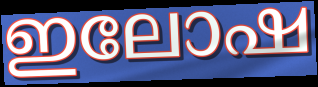
ഇലോഷ